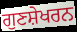
ਗੁਣਸ਼ੇਖਰਨ